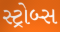
સ્ટ્રોબ્સ